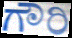
ಗೌರಿ